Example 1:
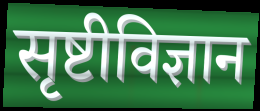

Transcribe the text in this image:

सृष्टीविज्ञान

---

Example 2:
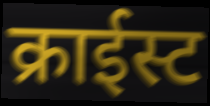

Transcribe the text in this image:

क्राईस्ट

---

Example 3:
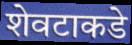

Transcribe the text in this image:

शेवटाकडे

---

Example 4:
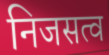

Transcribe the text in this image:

निजसत्व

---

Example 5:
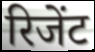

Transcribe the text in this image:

रिजेंट